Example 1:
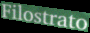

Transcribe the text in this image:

Filostrato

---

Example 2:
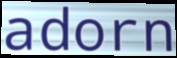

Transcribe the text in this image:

adorn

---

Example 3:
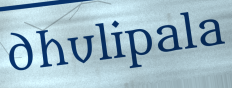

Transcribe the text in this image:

dhulipala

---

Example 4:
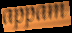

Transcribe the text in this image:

appam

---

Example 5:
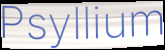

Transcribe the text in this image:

Psyllium